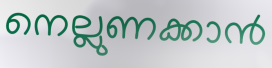
നെല്ലുണക്കാൻ